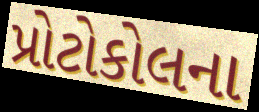
પ્રોટોકોલના